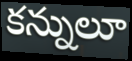
కన్నులూ